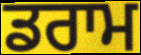
ਡਰਾਮ